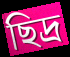
ছিদ্র